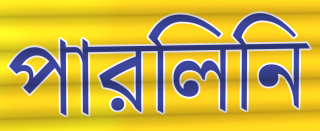
পারলিনি